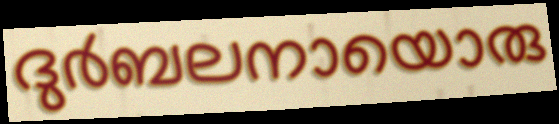
ദുർബലനായൊരു